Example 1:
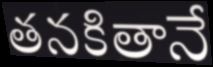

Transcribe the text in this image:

తనకితానే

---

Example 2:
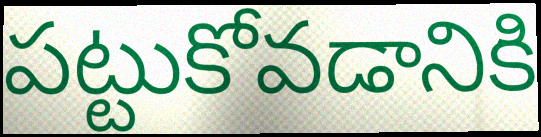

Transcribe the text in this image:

పట్టుకోవడానికి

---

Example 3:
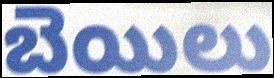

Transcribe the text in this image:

బెయిలు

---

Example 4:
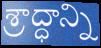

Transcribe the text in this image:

శ్రాద్ధాన్ని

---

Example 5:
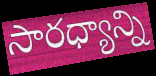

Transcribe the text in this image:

సారధ్యాన్ని